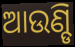
ଆଉଣ୍ଡି